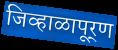
जिव्हाळापूर्ण